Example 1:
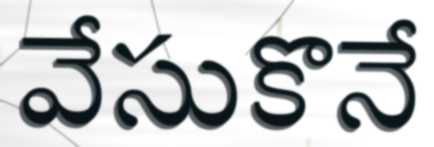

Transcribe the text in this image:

వేసుకొనే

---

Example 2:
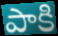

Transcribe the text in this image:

పాకి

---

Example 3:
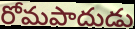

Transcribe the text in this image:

రోమపాదుడు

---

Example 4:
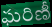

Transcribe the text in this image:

ఘరిణీ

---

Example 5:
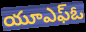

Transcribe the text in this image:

యూఎఫ్ఓ